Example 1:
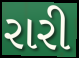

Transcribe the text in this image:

રારી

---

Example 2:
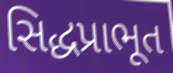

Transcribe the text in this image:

સિદ્ધપ્રાભૂત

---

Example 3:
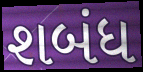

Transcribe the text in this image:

શબંધ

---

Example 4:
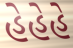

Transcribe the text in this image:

હેહેહે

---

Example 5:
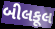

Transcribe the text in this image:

બીલકૂલ